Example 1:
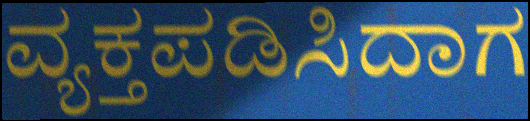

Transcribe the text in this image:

ವ್ಯಕ್ತಪಡಿಸಿದಾಗ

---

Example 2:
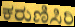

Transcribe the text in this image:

ಕರುಣಿಸಿರಿ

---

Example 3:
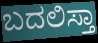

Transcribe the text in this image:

ಬದಲಿಸ್ತಾ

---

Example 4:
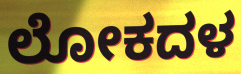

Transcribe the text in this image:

ಲೋಕದಳ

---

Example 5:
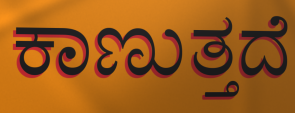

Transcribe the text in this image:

ಕಾಣುತ್ತದೆ